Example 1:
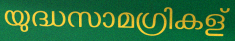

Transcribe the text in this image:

യുദ്ധസാമഗ്രികള്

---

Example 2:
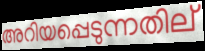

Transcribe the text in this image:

അറിയപ്പെടുന്നതില്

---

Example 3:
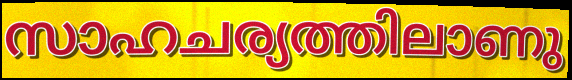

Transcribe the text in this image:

സാഹചര്യത്തിലാണു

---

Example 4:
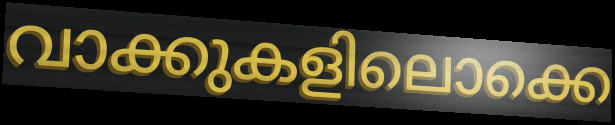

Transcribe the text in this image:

വാക്കുകളിലൊക്കെ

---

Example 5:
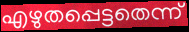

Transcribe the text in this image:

എഴുതപ്പെട്ടതെന്ന്